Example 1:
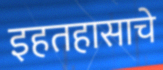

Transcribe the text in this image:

इहतहासाचे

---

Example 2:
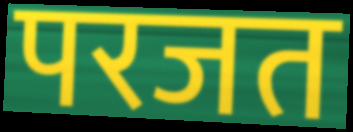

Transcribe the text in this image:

परजत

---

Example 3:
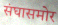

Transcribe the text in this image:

संघासमोर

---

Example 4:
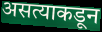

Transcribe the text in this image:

असत्याकडून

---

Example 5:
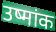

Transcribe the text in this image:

उष्मांक